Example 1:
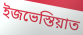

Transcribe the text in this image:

ইজভেস্তিয়াত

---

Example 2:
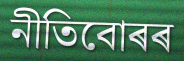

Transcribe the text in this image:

নীতিবোৰৰ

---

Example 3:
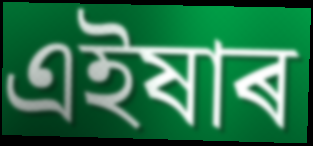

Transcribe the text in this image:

এইষাৰ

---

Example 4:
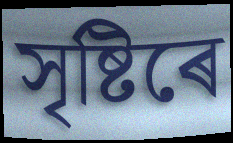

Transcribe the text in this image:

সৃষ্টিৰে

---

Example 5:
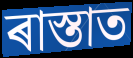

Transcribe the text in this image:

ৰাস্তাত